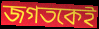
জগতকেই